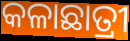
କଳାଛାତ୍ରୀ